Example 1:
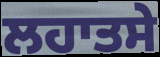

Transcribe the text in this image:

ਲਹਾਤਸੇ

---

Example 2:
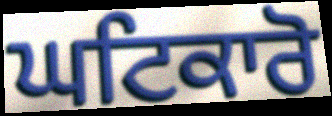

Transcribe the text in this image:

ਘਟਿਕਾਰੋ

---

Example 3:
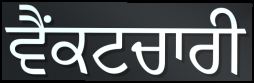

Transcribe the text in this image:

ਵੈਂਕਟਚਾਰੀ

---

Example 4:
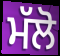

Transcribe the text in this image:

ਮੱਲੋ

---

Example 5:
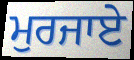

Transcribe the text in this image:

ਮੁਰਜਾਏ